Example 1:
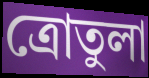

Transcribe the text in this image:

ত্রোতুলা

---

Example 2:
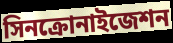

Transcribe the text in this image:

সিনক্রোনাইজেশন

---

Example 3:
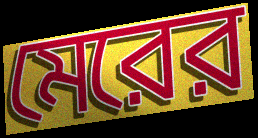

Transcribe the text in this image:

মেরের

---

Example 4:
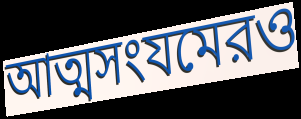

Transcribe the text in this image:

আত্মসংযমেরও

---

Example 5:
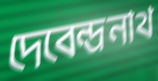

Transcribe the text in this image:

দেবেন্দ্রনাথ